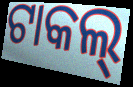
ଟାକଲ୍